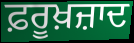
ਫ਼ਰੂਖ਼ਜ਼ਾਦ